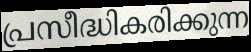
പ്രസീദ്ധികരിക്കുന്ന